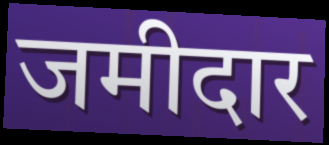
जमीदार